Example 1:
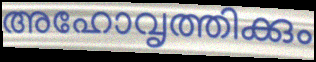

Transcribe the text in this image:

അഹോവൃത്തിക്കും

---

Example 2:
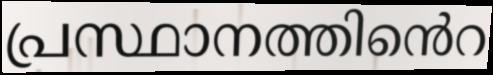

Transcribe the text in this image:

പ്രസ്ഥാനത്തിൻെറ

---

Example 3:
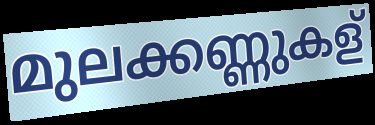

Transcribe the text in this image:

മുലക്കണ്ണുകള്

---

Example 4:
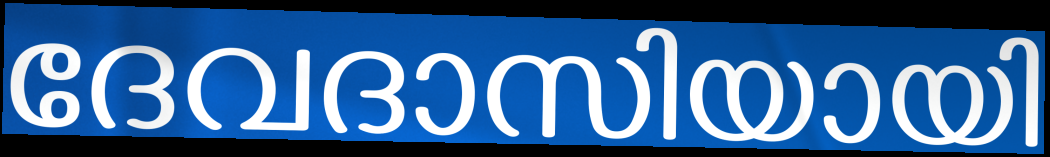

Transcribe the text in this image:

ദേവദാസിയായി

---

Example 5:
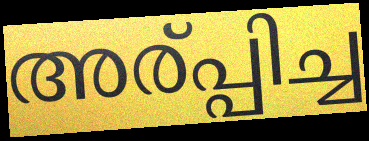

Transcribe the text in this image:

അര്പ്പിച്ച